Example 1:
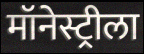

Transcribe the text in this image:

मॉनेस्ट्रीला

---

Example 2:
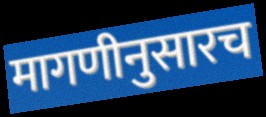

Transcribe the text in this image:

मागणीनुसारच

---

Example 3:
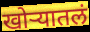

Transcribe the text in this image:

खोऱ्यातलं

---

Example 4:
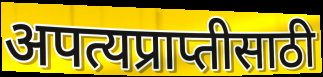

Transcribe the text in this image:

अपत्यप्राप्तीसाठी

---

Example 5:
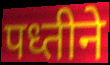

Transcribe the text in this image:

पध्तीने